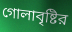
গোলাবৃষ্টির